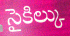
సైకిల్కు